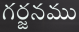
గర్జనము